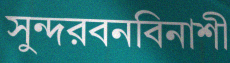
সুন্দরবনবিনাশী